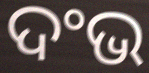
ଦଂଭ